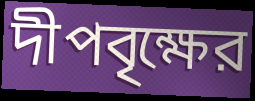
দীপবৃক্ষের